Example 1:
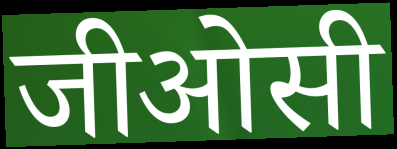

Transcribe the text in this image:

जीओसी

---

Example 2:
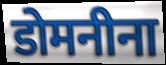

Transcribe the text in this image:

डोमनीना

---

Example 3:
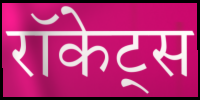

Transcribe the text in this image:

रॉकेट्स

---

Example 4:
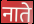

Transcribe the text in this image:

नाते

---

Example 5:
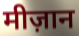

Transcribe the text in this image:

मीज़ान